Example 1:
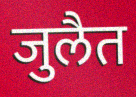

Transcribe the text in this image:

जुलैत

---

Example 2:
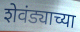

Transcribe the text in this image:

शेवंड्याच्या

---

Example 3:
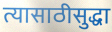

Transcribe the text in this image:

त्यासाठीसुद्धा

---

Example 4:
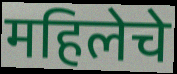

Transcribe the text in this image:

महिलेचे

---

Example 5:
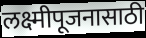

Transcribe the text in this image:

लक्ष्मीपूजनासाठी